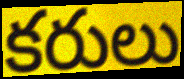
కరులు